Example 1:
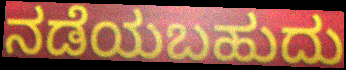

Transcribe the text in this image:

ನಡೆಯಬಹುದು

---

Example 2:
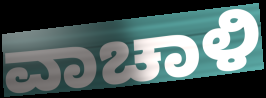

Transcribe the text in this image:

ವಾಚಾಳಿ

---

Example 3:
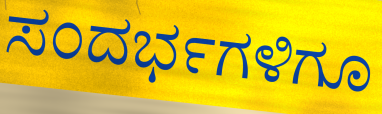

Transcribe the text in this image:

ಸಂದರ್ಭಗಳಿಗೂ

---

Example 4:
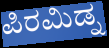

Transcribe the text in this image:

ಪಿರಮಿಡ್ನ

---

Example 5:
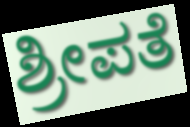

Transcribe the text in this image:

ಶ್ರೀಪತೆ